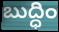
బుద్ధిం